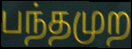
பந்தமுற